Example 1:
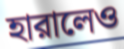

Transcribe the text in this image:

হারালেও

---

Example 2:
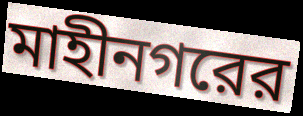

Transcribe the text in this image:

মাহীনগরের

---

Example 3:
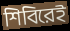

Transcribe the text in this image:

শিবিরেই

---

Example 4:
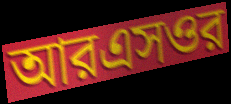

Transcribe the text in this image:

আরএসওর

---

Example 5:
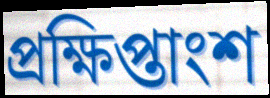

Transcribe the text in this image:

প্রক্ষিপ্তাংশ